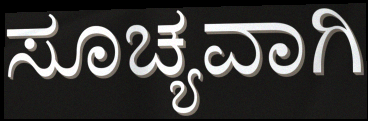
ಸೂಚ್ಯವಾಗಿ